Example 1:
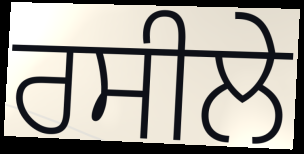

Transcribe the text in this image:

ਰਸੀਲੇ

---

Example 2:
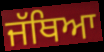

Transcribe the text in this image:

ਜੱਥਿਆ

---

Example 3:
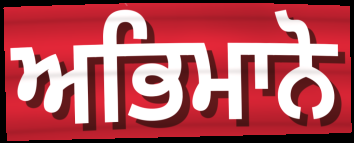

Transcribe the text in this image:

ਅਭਿਮਾਨੋ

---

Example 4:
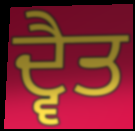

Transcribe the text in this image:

ਦ੍ਵੈਤ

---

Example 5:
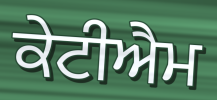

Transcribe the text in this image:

ਕੇਟੀਐਮ